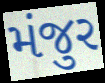
મંજુર